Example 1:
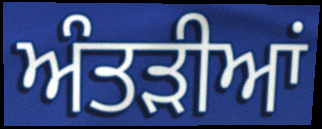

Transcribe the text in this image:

ਅੰਤੜੀਆਂ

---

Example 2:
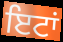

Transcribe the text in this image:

ਇਟਾਂ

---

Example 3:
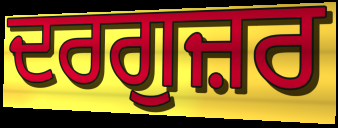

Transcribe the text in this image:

ਦਰਗੁਜ਼ਰ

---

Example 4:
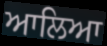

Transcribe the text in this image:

ਆਲਿਆ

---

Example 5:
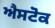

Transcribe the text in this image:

ਐਸਟੋਕ